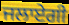
ਜਲਾਏਗੀ